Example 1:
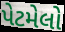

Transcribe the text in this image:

પેટમેલો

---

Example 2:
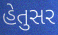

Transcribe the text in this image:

હેતુસર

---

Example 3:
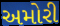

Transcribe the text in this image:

અમોરી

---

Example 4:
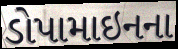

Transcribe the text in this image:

ડોપામાઇનના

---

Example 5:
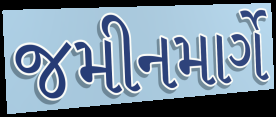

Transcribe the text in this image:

જમીનમાર્ગે